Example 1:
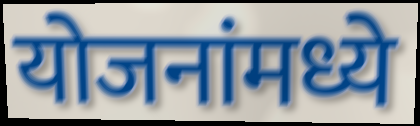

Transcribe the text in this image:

योजनांमध्ये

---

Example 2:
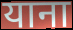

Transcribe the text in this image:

याना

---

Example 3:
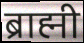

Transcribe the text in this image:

ब्राह्मी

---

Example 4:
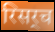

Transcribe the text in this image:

रिसर्च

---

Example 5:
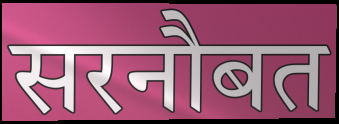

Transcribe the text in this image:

सरनौबत